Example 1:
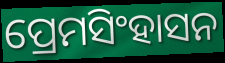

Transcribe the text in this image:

ପ୍ରେମସିଂହାସନ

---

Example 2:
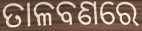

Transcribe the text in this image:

ତାଳବଣରେ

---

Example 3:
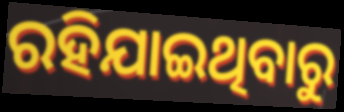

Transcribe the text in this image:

ରହିଯାଇଥିବାରୁ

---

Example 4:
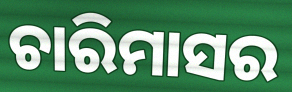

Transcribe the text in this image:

ଚାରିମାସର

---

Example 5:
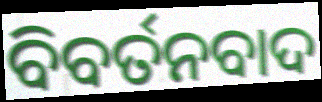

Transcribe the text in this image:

ବିବର୍ତନବାଦ